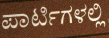
ಪಾರ್ಟಿಗಳಲ್ಲಿ